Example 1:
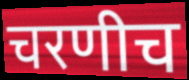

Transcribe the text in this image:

चरणीच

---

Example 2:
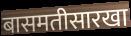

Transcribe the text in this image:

बासमतीसारखा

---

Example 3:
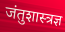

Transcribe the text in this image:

जंतुशास्त्रज्ञ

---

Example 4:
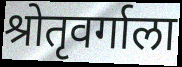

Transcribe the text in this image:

श्रोतृवर्गाला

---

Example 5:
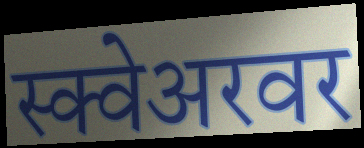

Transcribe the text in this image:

स्क्वेअरवर